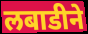
लबाडीने